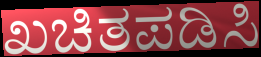
ಖಚಿತಪಡಿಸಿ